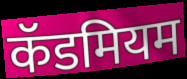
कॅडमियम